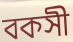
বকসী